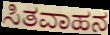
ಸಿತವಾಹನ